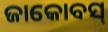
ଜାକୋବସ୍